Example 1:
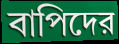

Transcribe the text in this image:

বাপিদের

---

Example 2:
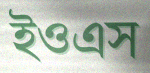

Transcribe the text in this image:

ইওএস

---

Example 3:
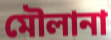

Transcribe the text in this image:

মৌলানা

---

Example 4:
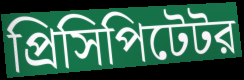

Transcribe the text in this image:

প্রিসিপিটেটর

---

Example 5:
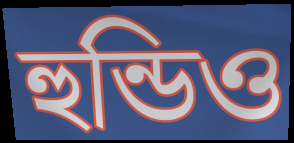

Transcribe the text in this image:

হুন্ডিও